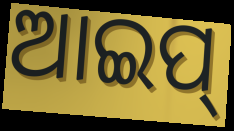
ଆଇପ୍